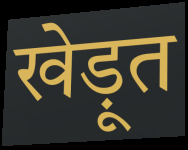
खेड़ूत